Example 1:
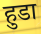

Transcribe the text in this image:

हुडा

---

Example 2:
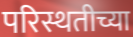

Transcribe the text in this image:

परिस्थतीच्या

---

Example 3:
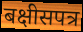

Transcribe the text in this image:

बक्षीसपत्र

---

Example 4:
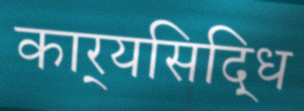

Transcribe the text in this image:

कार्यसिद्धि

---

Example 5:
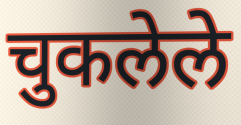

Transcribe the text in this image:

चुकलेले